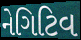
નેગિટિવ